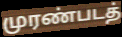
முரண்படத்